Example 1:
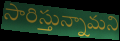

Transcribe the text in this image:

సారిస్తున్నామని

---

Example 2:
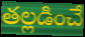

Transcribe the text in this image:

తల్లడించే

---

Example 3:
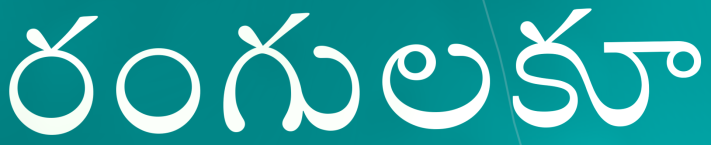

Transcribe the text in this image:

రంగులకూ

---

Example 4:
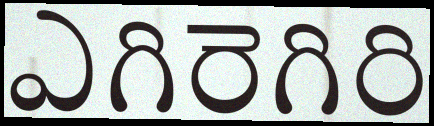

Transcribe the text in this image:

ఎగిరెగిరి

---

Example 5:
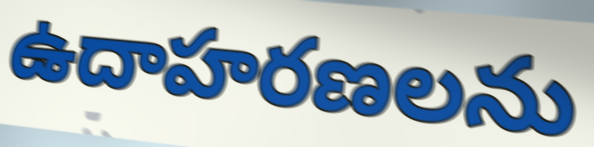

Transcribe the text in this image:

ఉదాహరణలను